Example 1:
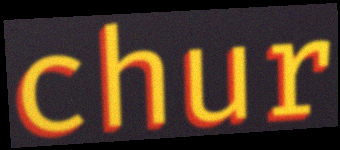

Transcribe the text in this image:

chur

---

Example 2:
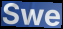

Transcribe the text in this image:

Swe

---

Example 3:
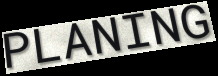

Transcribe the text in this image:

PLANING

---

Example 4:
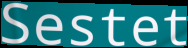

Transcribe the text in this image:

Sestet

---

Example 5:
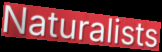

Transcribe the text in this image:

Naturalists